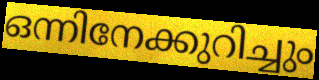
ഒന്നിനേക്കുറിച്ചും